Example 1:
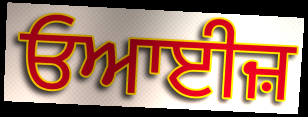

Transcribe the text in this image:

ਓਆਈਜ਼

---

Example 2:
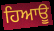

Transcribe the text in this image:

ਹਿਆਊ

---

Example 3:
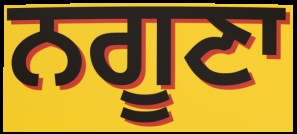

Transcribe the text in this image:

ਨਗੂਣਾ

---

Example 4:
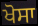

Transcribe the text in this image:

ਖੋਸਾ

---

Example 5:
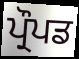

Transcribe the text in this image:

ਪ੍ਰੌਪਡ